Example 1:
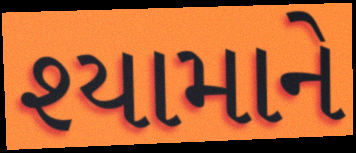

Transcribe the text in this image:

શ્યામાને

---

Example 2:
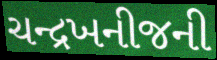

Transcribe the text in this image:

ચન્દ્રખનીજની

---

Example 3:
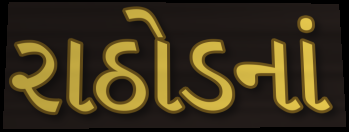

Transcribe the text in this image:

રાઠોડનાં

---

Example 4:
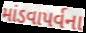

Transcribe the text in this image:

માંડવાપર્વના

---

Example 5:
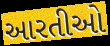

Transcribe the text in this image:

આરતીઓ